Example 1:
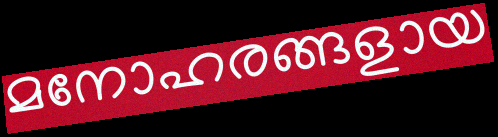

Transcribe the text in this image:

മനോഹരങ്ങളായ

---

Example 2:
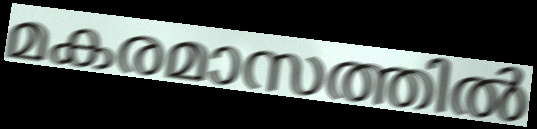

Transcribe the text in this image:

മകരമാസത്തിൽ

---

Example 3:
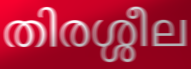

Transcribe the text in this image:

തിരശ്ശീല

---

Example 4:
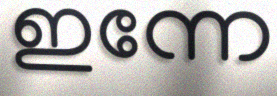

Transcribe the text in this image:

ഇന്നേ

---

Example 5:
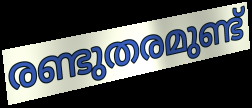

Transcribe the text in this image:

രണ്ടുതരമുണ്ട്